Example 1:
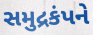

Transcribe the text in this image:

સમુદ્રકંપને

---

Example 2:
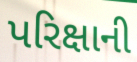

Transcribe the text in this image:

પરિક્ષાની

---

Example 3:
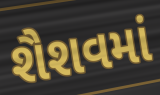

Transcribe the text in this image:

શૈશવમાં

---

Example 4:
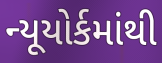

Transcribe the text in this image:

ન્યૂયોર્કમાંથી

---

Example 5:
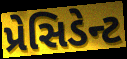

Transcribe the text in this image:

પ્રેસિડેન્ટ